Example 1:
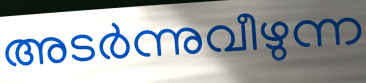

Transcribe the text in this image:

അടർന്നുവീഴുന്ന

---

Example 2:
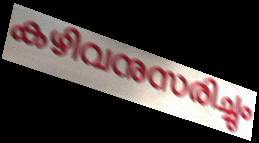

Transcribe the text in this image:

കഴിവനുസരിച്ചും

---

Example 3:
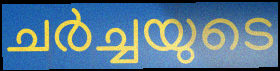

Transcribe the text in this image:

ചർച്ചയുടെ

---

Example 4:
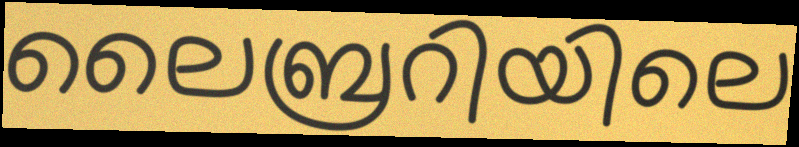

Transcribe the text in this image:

ലൈബ്രറിയിലെ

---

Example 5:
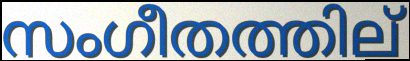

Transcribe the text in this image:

സംഗീതത്തില്